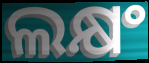
ଲକ୍ଷଂ